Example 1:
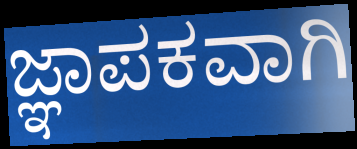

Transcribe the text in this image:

ಜ್ಞಾಪಕವಾಗಿ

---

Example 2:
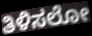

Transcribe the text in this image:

ತಿಳಿಸಲೋ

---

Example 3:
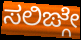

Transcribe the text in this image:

ಸಲಿಙ್ಗೇ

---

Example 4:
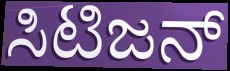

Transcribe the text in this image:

ಸಿಟಿಜನ್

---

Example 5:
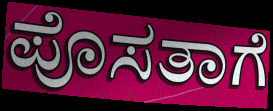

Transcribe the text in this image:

ಪೊಸತಾಗೆ